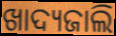
ଖାଦ୍ୟଜାଲି